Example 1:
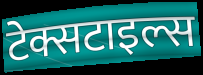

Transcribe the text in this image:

टेक्सटाइल्स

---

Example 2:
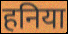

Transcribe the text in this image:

हनिया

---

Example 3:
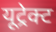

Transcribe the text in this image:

यूट्रेक्ट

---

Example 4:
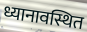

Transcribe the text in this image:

ध्यानावस्थित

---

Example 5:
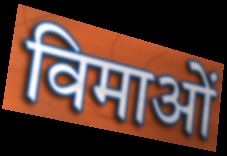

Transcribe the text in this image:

विमाओं